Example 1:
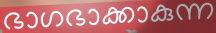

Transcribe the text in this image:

ഭാഗഭാക്കാകുന്ന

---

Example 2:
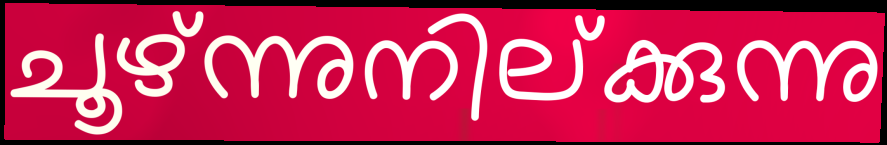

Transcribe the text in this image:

ചൂഴ്ന്നുനില്ക്കുന്നു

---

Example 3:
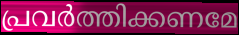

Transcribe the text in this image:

പ്രവർത്തിക്കണമേ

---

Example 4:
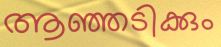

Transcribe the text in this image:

ആഞ്ഞടിക്കും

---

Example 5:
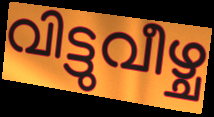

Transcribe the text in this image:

വിട്ടുവീഴ്ച